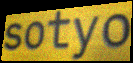
sotyo